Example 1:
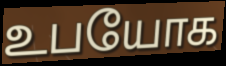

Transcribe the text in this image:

உபயோக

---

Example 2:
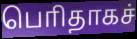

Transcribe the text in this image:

பெரிதாகச்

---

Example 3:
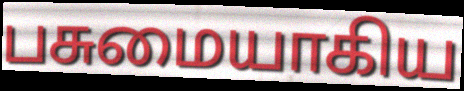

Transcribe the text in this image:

பசுமையாகிய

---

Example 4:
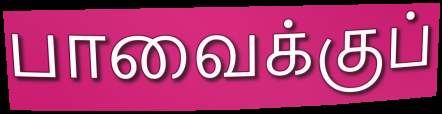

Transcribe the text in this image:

பாவைக்குப்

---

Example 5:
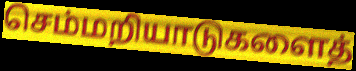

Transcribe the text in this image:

செம்மறியாடுகளைத்